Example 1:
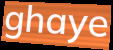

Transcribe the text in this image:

ghaye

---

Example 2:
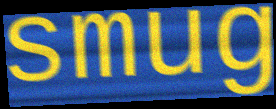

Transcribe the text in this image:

smug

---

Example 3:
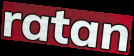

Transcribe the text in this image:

ratan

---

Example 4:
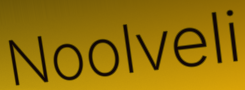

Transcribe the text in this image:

Noolveli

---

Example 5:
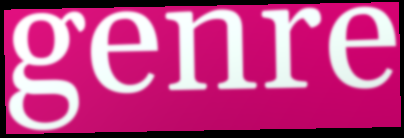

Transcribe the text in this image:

genre